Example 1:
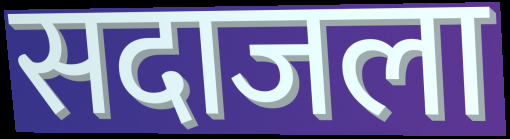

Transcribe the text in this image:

सदाजला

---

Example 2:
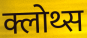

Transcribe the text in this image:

क्लोथ्स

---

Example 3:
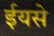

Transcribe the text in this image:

ईयसे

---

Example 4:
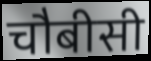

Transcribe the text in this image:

चौबीसी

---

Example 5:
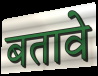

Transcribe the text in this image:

बतावे